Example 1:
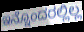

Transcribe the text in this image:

ಇನ್ನೊಂದರಲ್ಲಿಲ್ಲ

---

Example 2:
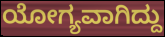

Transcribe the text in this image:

ಯೋಗ್ಯವಾಗಿದ್ದು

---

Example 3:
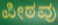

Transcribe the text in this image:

ಪೀಠವು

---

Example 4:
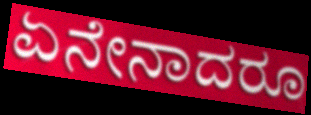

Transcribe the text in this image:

ಏನೇನಾದರೂ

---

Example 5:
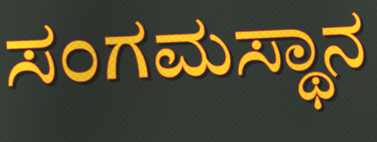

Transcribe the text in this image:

ಸಂಗಮಸ್ಥಾನ